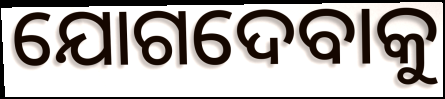
ଯୋଗଦେବାକୁ